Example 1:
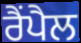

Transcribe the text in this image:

ਰੈਂਪੈਲ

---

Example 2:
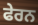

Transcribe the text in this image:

ਫੇਰਨ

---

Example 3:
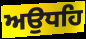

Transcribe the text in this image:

ਅਉਧਹਿ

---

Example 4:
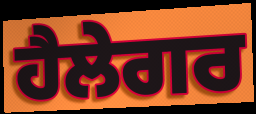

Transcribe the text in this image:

ਹੈਲੇਗਰ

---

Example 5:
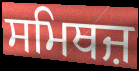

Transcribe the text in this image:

ਸਮਿਥਜ਼